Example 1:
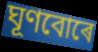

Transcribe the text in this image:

ঘূণবোৰে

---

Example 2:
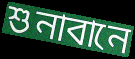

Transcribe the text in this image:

শুনাবানে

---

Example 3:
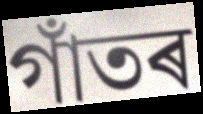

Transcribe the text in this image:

গাঁতৰ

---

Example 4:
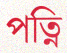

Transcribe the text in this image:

পত্নি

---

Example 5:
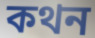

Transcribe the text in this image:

কথন